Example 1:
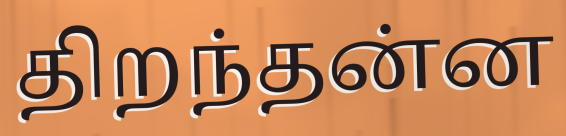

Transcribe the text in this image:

திறந்தன்ன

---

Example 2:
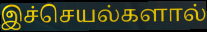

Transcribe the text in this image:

இச்செயல்களால்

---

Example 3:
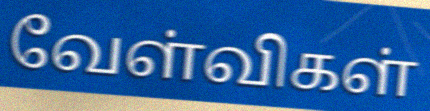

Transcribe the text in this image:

வேள்விகள்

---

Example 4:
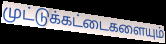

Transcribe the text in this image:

முட்டுக்கட்டைகளையும்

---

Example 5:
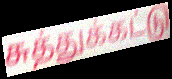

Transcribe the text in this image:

சுத்துக்கட்டு